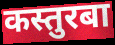
कस्तुरबा